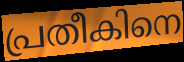
പ്രതീകിനെ